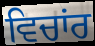
ਵਿਚਾਂਰ